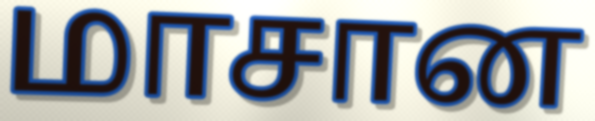
மாசான